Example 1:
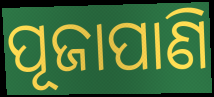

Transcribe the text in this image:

ପୂଜାପାଣି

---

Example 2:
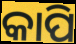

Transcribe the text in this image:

କାପି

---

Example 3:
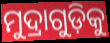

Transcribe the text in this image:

ମୁଦ୍ରାଗୁଡ଼ିକୁ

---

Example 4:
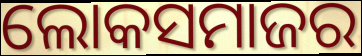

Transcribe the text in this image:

ଲୋକସମାଜର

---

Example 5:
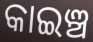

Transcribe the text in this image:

କାଇଞ୍ଚ